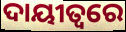
ଦାୟୀତ୍ଵରେ